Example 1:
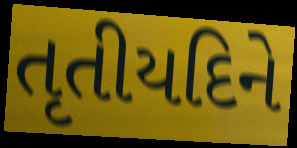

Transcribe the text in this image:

તૃતીયદિને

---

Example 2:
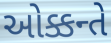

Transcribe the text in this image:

ઓક્કન્તે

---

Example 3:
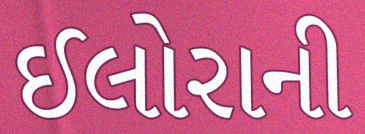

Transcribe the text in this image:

ઈલોરાની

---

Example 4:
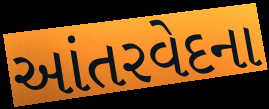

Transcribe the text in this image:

આંતરવેદના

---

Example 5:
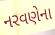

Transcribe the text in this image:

નરવણેના